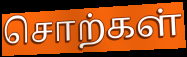
சொற்கள்